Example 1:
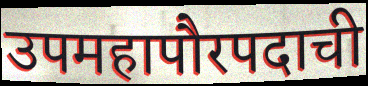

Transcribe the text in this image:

उपमहापौरपदाची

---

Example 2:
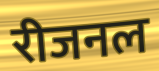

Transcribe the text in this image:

रीजनल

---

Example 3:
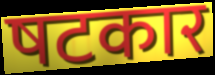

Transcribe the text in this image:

षटकार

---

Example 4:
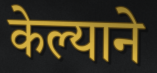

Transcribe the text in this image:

केल्याने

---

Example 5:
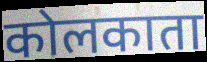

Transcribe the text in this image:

कोलकाता